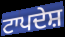
ਟਾਪਦੇਸ਼